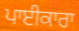
ਪਾਈਕਾਰਾ